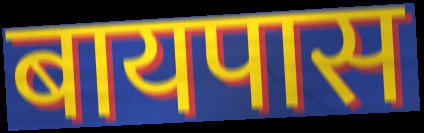
बायपास